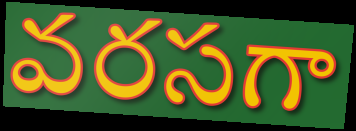
వరసగా